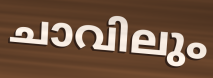
ചാവിലും